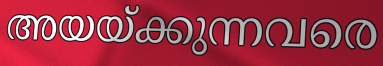
അയയ്ക്കുന്നവരെ